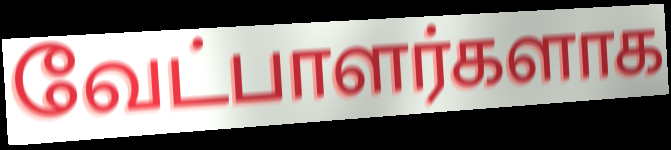
வேட்பாளர்களாக